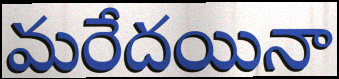
మరేదయినా